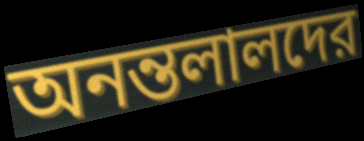
অনন্তলালদের